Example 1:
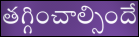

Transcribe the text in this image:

తగ్గించాల్సిందే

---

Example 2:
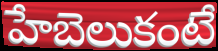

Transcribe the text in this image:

హేబెలుకంటే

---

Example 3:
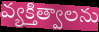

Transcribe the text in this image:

వ్యక్తిత్వాలను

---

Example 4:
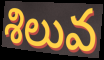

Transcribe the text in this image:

శిలువ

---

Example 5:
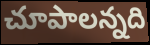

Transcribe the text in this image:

చూపాలన్నది